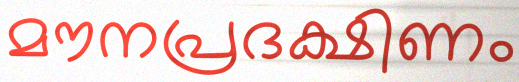
മൗനപ്രദക്ഷിണം